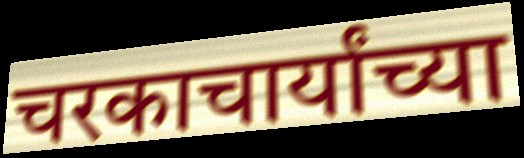
चरकाचार्यांच्या